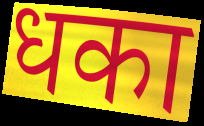
धका